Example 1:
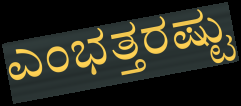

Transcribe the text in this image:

ಎಂಭತ್ತರಷ್ಟು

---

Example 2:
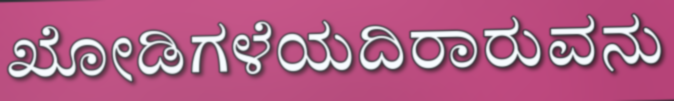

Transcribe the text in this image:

ಖೋಡಿಗಳೆಯದಿರಾರುವನು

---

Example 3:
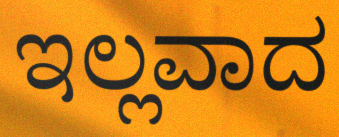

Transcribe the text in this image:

ಇಲ್ಲವಾದ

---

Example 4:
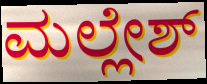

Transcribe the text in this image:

ಮಲ್ಲೇಶ್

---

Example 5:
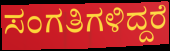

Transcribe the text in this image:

ಸಂಗತಿಗಳಿದ್ದರೆ